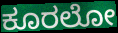
ಕೂರಲೋ